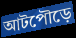
আটপৌড়ে